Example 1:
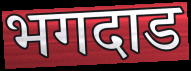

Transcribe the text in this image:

भगदाड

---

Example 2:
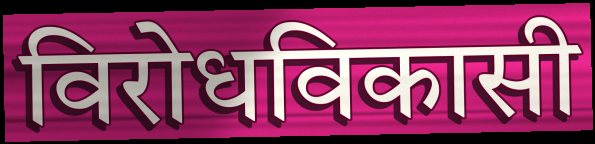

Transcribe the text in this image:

विरोधविकासी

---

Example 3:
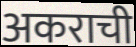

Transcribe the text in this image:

अकराची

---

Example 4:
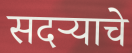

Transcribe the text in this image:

सदऱ्याचे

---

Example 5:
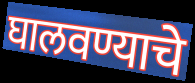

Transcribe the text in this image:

घालवण्याचे